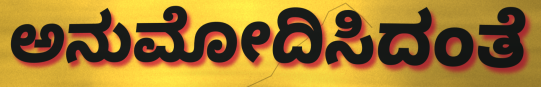
ಅನುಮೋದಿಸಿದಂತೆ